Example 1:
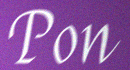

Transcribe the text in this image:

Pon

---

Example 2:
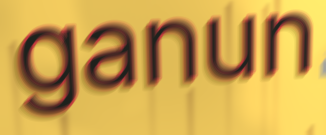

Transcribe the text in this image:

ganun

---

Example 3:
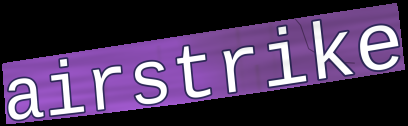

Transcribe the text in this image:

airstrike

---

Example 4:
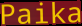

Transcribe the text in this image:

Paika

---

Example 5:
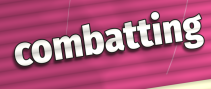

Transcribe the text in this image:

combatting